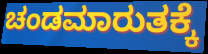
ಚಂಡಮಾರುತಕ್ಕೆ